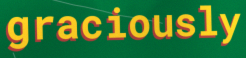
graciously